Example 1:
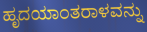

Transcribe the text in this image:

ಹೃದಯಾಂತರಾಳವನ್ನು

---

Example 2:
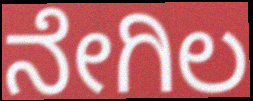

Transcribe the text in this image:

ನೇಗಿಲ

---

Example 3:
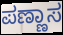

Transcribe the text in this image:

ಪಣ್ಣಾಸ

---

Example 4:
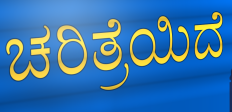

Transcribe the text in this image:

ಚರಿತ್ರೆಯಿದೆ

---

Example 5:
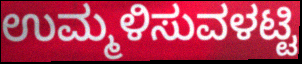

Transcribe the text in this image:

ಉಮ್ಮಳಿಸುವಳಟ್ಟಿ